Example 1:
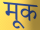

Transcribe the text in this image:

मूक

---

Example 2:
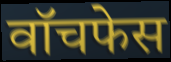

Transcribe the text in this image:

वॉचफेस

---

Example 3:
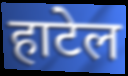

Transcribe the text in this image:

हाटेल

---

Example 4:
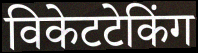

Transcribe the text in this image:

विकेटटेकिंग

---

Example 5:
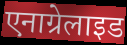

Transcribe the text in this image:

एनाग्रेलाइड